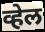
व्हेल